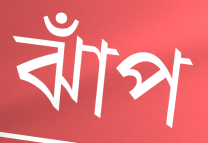
ঝাঁপ